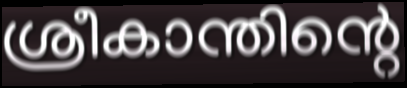
ശ്രീകാന്തിന്റെ